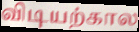
விடியற்கால